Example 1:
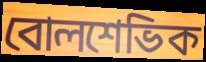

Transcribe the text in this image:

বোলশেভিক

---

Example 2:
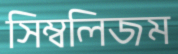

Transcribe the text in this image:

সিম্বলিজম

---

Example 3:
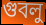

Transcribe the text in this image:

গুবলু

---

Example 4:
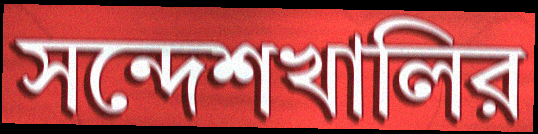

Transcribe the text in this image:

সন্দেশখালির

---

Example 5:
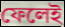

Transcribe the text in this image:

ফেলেই